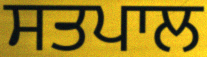
ਸਤਪਾਲ